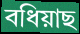
বধিয়াছ